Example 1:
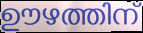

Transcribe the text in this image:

ഊഴത്തിന്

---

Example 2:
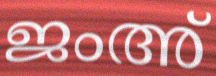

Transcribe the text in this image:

ജംഅ്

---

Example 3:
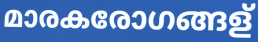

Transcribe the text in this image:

മാരകരോഗങ്ങള്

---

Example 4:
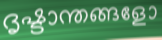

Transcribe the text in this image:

ദൃഷ്ടാന്തങ്ങളോ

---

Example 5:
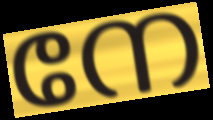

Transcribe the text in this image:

നേ